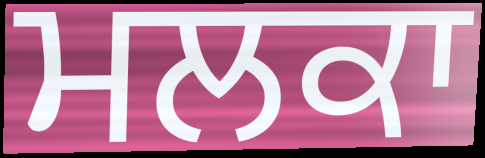
ਮਲਕਾ